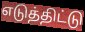
எடுத்திட்டு